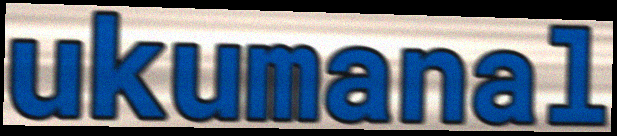
ukumanal